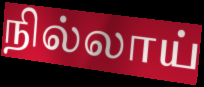
நில்லாய்